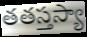
తతస్తస్యా